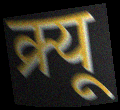
क्र्यू